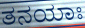
ತನಯಾಃ